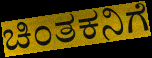
ಚಿಂತಕನಿಗೆ